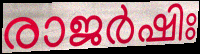
രാജർഷിഃ